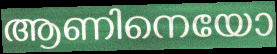
ആണിനെയോ